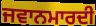
ਜਵਾਨਮਾਰਦੀ